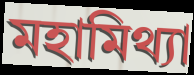
মহামিথ্যা